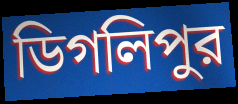
ডিগলিপুর